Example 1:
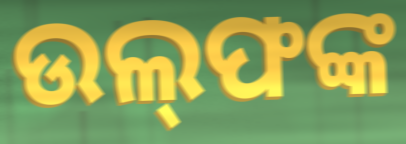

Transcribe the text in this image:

ଉଲ୍‌ଫଙ୍କ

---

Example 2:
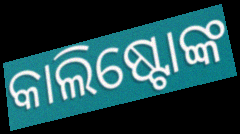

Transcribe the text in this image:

କାଲିଷ୍ଟୋଙ୍କ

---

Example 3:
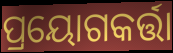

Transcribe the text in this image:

ପ୍ରୟୋଗକର୍ତ୍ତା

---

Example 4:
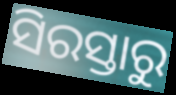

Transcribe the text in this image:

ସିରସ୍ତାରୁ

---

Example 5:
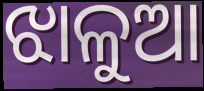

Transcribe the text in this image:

ଝାଳୁଆ